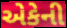
એકેની